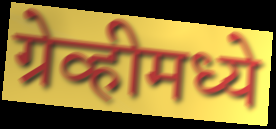
ग्रेव्हीमध्ये